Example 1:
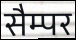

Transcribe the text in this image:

सैम्पर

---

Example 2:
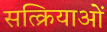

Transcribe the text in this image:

सत्क्रियाओं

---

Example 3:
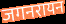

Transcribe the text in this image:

जगनरायन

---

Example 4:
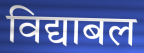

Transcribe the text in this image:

विद्याबल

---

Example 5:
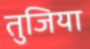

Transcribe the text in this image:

तुजिया